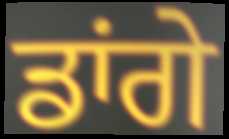
ਡਾਂਗੇ